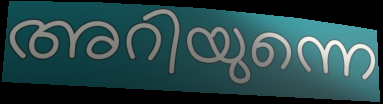
അറിയുന്നെ